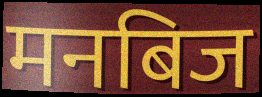
मनबिज